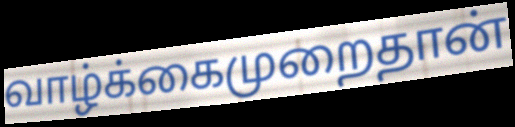
வாழ்க்கைமுறைதான்